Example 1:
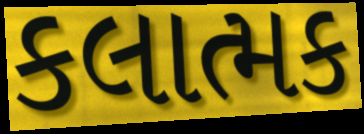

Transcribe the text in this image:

કલાત્મક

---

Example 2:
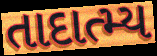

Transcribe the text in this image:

તાદાત્મ્ય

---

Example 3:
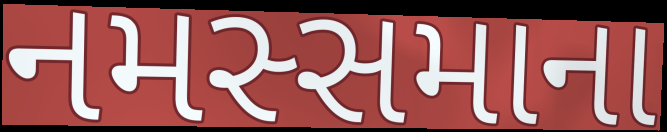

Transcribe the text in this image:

નમસ્સમાના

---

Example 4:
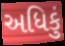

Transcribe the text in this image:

અધિકું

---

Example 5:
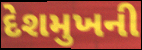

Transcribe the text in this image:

દેશમુખની